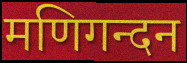
मणिगन्दन